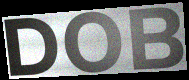
DOB